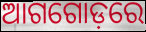
ଆଗଗୋଡ଼ରେ